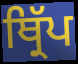
ਥ੍ਰਿੱਪ